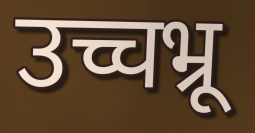
उच्चभ्रू